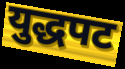
युद्धपट